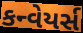
કન્વેયર્સ